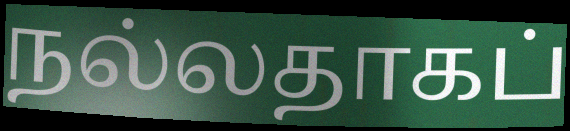
நல்லதாகப்